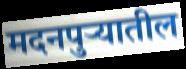
मदनपुऱ्यातील